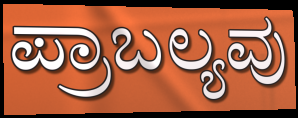
ಪ್ರಾಬಲ್ಯವು